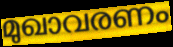
മുഖാവരണം